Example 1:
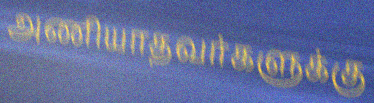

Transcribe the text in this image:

அணியாதவர்களுக்கு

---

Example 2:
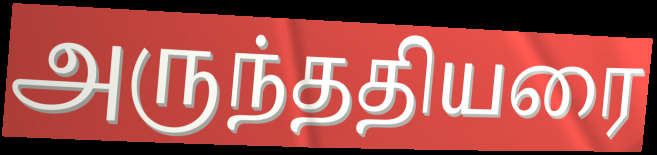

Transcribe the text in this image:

அருந்ததியரை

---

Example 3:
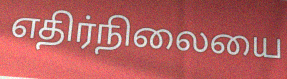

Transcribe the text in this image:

எதிர்நிலையை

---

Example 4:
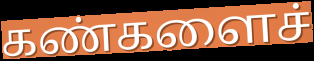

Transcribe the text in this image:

கண்களைச்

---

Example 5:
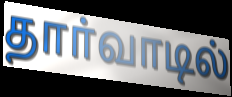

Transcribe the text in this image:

தார்வாடில்